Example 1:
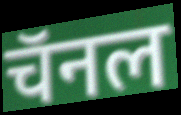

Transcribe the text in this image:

चॅनल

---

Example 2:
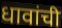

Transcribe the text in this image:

धावांची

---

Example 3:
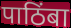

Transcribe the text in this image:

पाठिंबा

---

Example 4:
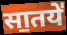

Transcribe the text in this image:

सा॒तये॑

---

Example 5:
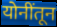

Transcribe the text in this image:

योनींतून